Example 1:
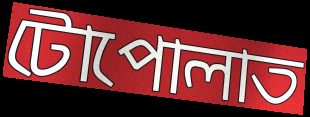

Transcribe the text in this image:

টোপোলাত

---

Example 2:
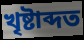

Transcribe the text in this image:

খৃষ্টাব্দত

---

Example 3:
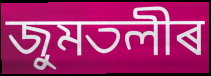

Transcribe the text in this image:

জুমতলীৰ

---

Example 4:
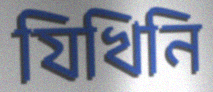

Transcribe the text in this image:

যিখিনি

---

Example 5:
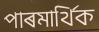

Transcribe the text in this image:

পাৰমাৰ্থিক